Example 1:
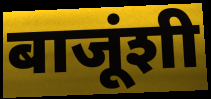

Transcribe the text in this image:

बाजूंशी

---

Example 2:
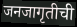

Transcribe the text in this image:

जनजागृतीची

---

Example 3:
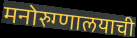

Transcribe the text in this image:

मनोरुग्णालयाची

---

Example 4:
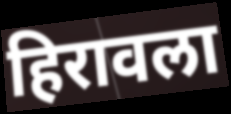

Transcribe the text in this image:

हिरावला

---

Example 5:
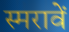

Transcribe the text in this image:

स्मरावें